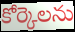
కోర్కెలను